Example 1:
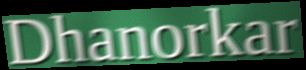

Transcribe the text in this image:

Dhanorkar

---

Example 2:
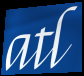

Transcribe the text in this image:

atl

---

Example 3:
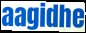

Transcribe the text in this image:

aagidhe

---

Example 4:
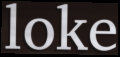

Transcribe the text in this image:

loke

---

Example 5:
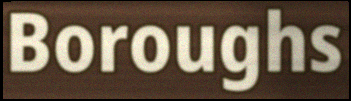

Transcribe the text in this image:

Boroughs